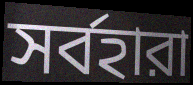
সর্বহারা